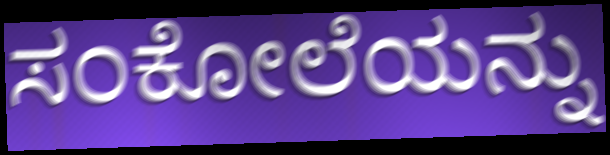
ಸಂಕೋಲೆಯನ್ನು